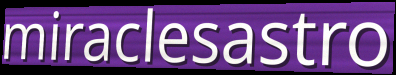
miraclesastro